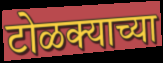
टोळक्याच्या